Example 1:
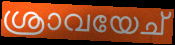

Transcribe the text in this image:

ശ്രാവയേച്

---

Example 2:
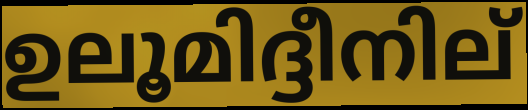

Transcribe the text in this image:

ഉലൂമിദ്ദീനില്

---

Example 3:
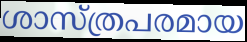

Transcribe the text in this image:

ശാസ്ത്രപരമായ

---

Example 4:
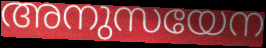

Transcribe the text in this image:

അനുസയേന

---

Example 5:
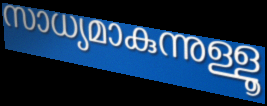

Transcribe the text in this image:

സാധ്യമാകുന്നുള്ളൂ